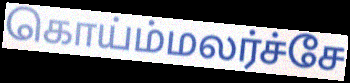
கொய்ம்மலர்ச்சே